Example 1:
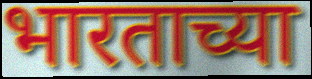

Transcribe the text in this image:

भारताच्या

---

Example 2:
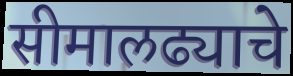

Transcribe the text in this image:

सीमालढ्याचे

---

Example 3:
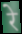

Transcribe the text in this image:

रे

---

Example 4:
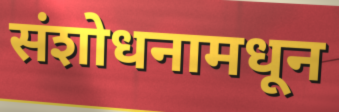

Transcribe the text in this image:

संशोधनामधून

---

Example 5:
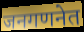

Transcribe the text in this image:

जनगणनेत